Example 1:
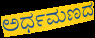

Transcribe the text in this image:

ಅರ್ಧಮಣದ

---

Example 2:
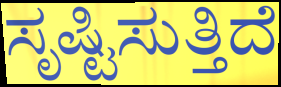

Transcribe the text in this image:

ಸೃಷ್ಟಿಸುತ್ತಿದೆ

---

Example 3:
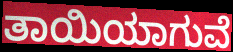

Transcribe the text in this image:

ತಾಯಿಯಾಗುವೆ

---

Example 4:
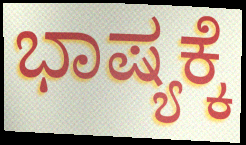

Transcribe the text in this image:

ಭಾಷ್ಯಕ್ಕೆ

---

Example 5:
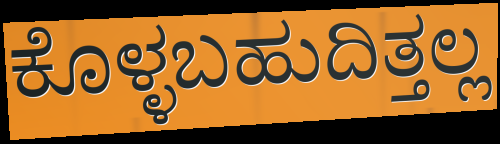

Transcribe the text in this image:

ಕೊಳ್ಳಬಹುದಿತ್ತಲ್ಲ